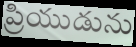
ప్రియుడును